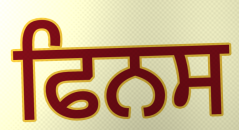
ਫਿਨਸ